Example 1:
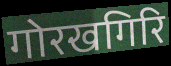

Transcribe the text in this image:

गोरखगिरि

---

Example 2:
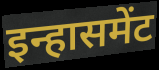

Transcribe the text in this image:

इन्हासमेंट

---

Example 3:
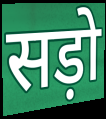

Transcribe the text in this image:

सड़ो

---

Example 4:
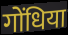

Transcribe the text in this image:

गोंधिया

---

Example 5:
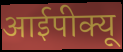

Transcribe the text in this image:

आईपीक्यू